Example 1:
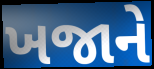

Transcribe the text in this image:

ખજાને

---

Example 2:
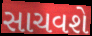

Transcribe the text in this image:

સાચવશે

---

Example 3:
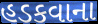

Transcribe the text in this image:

હડકવાના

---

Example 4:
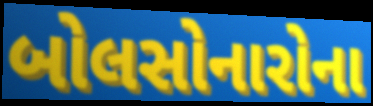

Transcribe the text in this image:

બોલસોનારોના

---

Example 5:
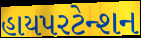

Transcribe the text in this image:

હાયપરટેન્શન